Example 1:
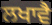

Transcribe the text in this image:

ਲਖਾਵੈ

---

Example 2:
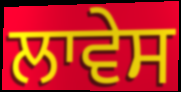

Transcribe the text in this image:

ਲਾਵੇਸ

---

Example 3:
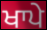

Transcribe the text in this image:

ਖਾਪੇ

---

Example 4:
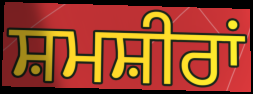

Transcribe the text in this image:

ਸ਼ਮਸ਼ੀਰਾਂ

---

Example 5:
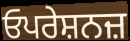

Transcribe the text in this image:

ਓਪਰੇਸ਼ਨਜ਼